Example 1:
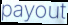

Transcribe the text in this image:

payout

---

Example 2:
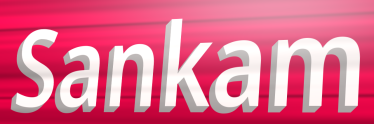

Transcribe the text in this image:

Sankam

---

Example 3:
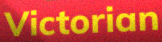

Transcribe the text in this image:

Victorian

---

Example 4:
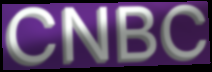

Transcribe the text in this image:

CNBC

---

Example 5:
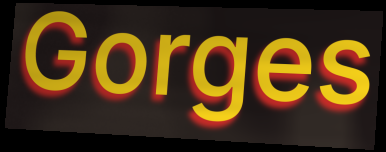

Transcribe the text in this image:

Gorges